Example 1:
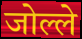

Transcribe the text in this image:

जोल्ले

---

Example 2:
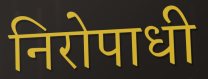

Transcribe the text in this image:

निरोपाधी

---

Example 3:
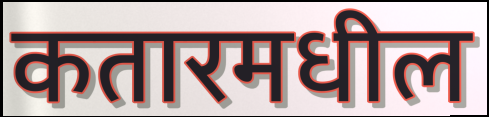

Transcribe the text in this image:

कतारमधील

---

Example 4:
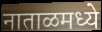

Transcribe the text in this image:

नाताळमध्ये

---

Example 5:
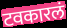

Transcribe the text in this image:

टवकारलं